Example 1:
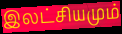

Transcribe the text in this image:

இலட்சியமும்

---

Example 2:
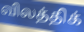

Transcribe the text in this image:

விலத்திக்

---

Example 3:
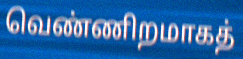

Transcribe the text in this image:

வெண்ணிறமாகத்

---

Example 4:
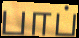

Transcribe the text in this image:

பாப்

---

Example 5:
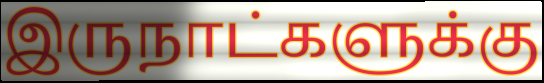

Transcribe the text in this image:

இருநாட்களுக்கு